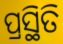
ପ୍ରସ୍ଥିତି